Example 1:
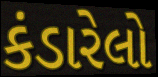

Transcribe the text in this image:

કંડારેલો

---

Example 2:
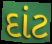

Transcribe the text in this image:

દાંટ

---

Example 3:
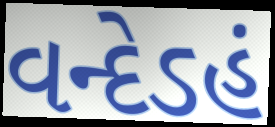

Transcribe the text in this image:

વન્દેઽહં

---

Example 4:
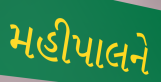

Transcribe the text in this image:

મહીપાલને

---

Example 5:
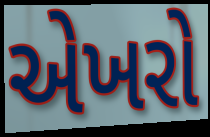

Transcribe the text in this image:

એખરો